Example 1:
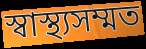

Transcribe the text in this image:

স্বাস্থ্যসম্মত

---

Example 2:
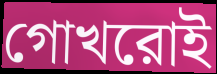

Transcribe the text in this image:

গোখরোই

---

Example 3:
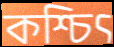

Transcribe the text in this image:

কশ্চিৎ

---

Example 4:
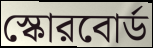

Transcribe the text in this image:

স্কোরবোর্ড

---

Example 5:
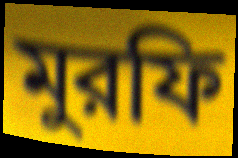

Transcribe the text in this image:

মুরফি